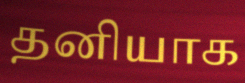
தனியாக